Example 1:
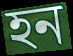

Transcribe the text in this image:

হন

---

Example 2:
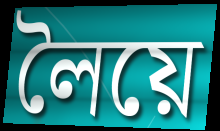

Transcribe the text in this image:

লৈয়ে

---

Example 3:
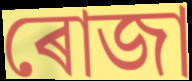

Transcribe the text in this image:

ৰোজা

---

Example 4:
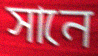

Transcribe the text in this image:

সানে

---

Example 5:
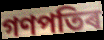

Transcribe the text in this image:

গণপতিৰ